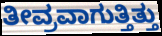
ತೀವ್ರವಾಗುತ್ತಿತ್ತು